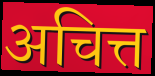
अचित्त